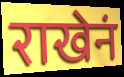
राखेनं